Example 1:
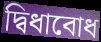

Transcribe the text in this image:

দ্বিধাবোধ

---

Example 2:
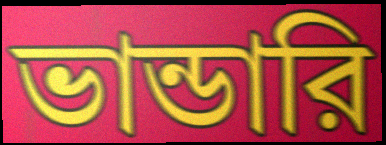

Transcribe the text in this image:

ভান্ডারি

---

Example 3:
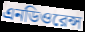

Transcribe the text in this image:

এনডিওরেন্স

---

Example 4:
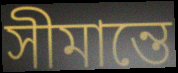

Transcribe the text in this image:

সীমান্তে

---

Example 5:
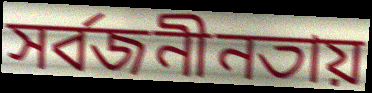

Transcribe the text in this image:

সর্বজনীনতায়